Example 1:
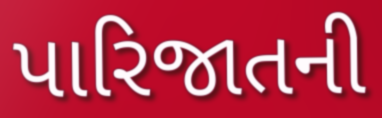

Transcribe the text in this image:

પારિજાતની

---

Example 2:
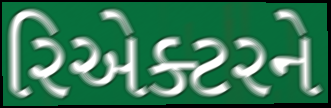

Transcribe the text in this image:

રિએક્ટરને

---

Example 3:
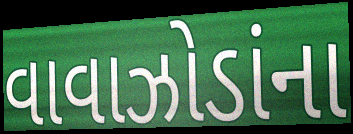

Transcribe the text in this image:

વાવાઝોડાંના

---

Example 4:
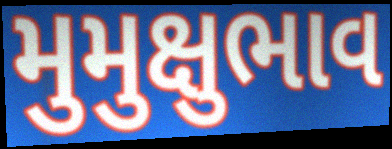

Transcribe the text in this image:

મુમુક્ષુભાવ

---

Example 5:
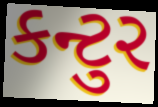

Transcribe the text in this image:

કન્ટુર